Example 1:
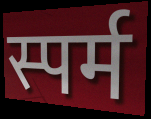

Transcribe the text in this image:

स्पर्म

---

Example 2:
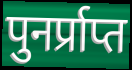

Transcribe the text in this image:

पुनर्प्राप्त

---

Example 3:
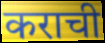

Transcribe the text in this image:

कराची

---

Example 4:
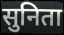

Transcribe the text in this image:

सुनिता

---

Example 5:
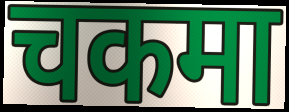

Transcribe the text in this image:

चकमा